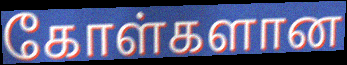
கோள்களான